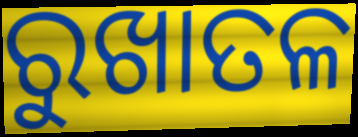
ରୁଖାତଳ